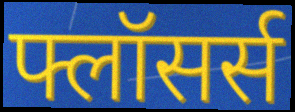
फ्लॉसर्स